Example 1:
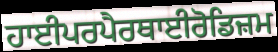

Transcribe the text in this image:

ਹਾਈਪਰਪੈਰਥਾਈਰੋਡਿਜ਼ਮ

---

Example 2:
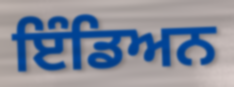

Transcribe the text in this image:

ਇੰਡਿਅਨ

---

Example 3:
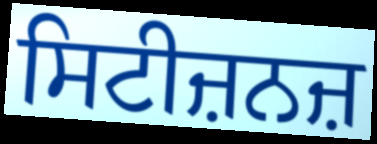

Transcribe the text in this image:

ਸਿਟੀਜ਼ਨਜ਼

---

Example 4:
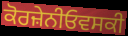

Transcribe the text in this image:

ਕੋਰਜ਼ੇਨੀਓਵਸਕੀ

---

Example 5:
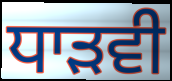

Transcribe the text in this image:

ਧਾੜਵੀ